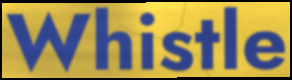
Whistle